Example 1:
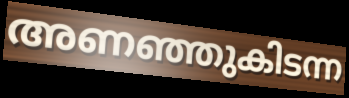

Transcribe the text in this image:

അണഞ്ഞുകിടന്ന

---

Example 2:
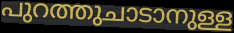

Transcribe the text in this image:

പുറത്തുചാടാനുള്ള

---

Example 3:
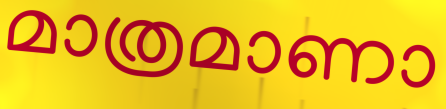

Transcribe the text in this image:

മാത്രമാണാ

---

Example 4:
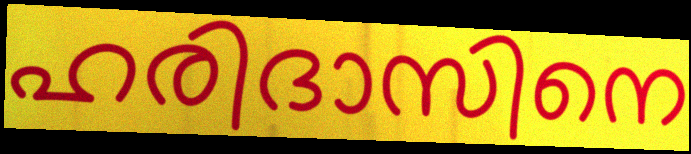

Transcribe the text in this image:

ഹരിദാസിനെ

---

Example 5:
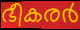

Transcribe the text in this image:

ഭീകരർ